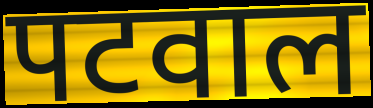
पटवाल